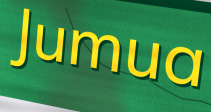
Jumua